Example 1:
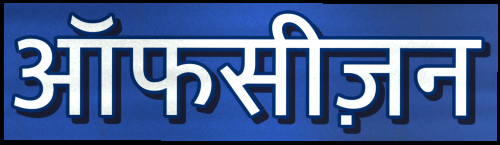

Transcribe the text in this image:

ऑफसीज़न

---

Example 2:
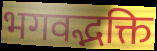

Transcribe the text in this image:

भगवद्भक्ति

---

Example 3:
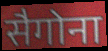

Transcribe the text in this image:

सैगोना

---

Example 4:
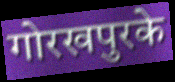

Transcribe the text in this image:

गोरखपुरके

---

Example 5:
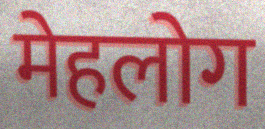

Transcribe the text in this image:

मेहलोग